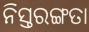
ନିସ୍ତରଙ୍ଗତା